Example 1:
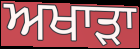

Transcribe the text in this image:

ਅਖਾੜਾ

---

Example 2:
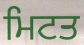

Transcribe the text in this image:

ਮਿਟਤ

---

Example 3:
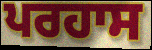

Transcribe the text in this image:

ਪਰਹਾਸ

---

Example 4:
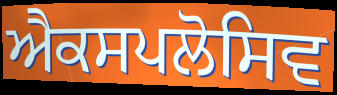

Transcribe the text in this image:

ਐਕਸਪਲੋਸਿਵ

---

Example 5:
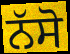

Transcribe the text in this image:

ਨੱਸੋ